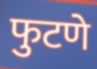
फुटणे